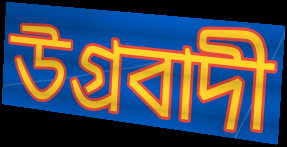
উগ্ৰবাদী